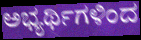
ಅಭ್ಯರ್ಥಿಗಳಿಂದ